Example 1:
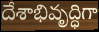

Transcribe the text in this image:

దేశాభివృద్ధిగా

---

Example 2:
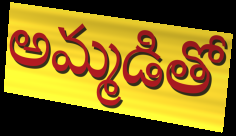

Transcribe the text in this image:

అమ్మడితో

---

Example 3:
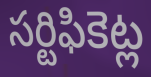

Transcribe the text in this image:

సర్టిఫికెట్ల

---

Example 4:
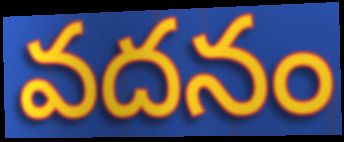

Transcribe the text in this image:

వదనం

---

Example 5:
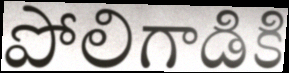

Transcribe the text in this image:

పోలిగాడికి